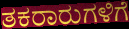
ತಕರಾರುಗಳಿಗೆ